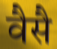
वैसै